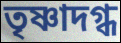
তৃষ্ণাদগ্ধ